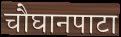
चौघानपाटा